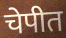
चेपीत